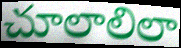
చూలాలిలా